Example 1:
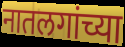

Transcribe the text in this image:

नातलगांच्या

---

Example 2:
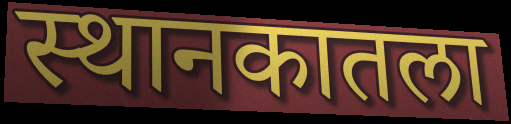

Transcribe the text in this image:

स्थानकातला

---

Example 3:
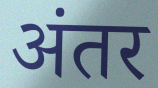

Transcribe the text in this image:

अंतर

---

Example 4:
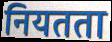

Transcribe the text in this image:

नियतता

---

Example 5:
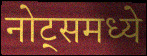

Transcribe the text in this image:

नोट्समध्ये